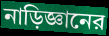
নাড়িজ্ঞানের